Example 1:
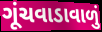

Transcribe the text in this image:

ગૂંચવાડાવાળું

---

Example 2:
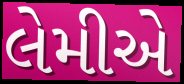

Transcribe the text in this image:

લેમીએ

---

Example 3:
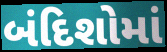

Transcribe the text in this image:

બંદિશોમાં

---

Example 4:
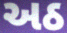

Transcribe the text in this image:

અઠ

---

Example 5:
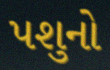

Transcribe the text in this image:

પશુનો